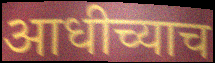
आधीच्याच